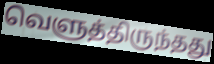
வெளுத்திருந்தது